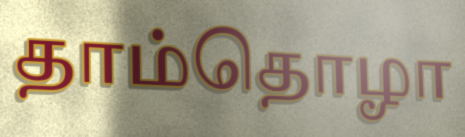
தாம்தொழா